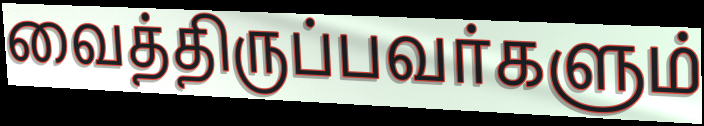
வைத்திருப்பவர்களும்